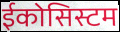
ईकोसिस्‍टम